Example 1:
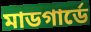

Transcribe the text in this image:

মাডগার্ডে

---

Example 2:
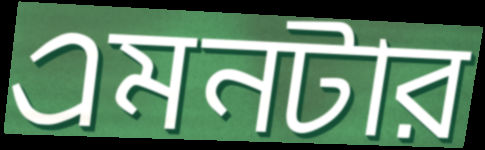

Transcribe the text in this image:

এমনটার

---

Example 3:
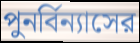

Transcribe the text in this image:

পুনর্বিন্যাসের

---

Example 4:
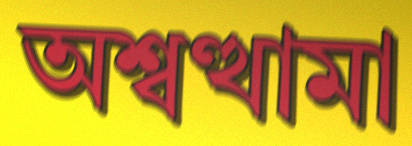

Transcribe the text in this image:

অশ্বত্থামা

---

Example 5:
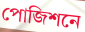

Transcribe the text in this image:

পোজিশনে